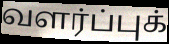
வளர்ப்புக்